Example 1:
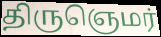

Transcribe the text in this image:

திருஞெமர்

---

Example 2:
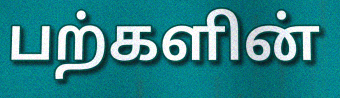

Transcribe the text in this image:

பற்களின்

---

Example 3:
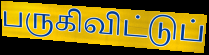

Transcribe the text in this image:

பருகிவிட்டுப்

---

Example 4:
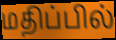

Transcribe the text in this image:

மதிப்பில்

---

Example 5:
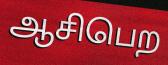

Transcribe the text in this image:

ஆசிபெற